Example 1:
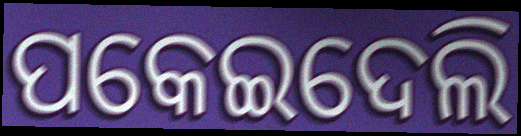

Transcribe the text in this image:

ପକେଇଦେଲି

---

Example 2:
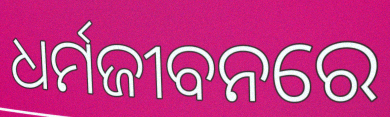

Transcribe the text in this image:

ଧର୍ମଜୀବନରେ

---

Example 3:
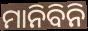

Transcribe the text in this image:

ମାନିବିନି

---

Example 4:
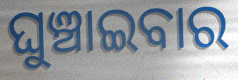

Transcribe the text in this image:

ଘୁଞ୍ଚାଇବାର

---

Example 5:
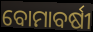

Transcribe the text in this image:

ବୋମାବର୍ଷୀ